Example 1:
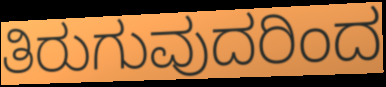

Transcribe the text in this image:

ತಿರುಗುವುದರಿಂದ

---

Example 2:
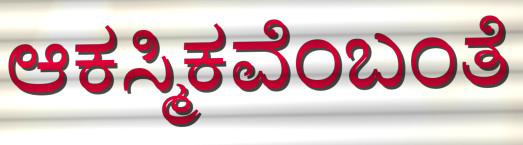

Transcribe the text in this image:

ಆಕಸ್ಮಿಕವೆಂಬಂತೆ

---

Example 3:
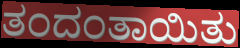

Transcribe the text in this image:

ತಂದಂತಾಯಿತು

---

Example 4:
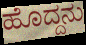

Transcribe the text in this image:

ಹೊದ್ದನು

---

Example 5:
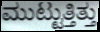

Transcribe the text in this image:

ಮುಟ್ಟುತ್ತಿತ್ತು